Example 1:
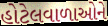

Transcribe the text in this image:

હોટેલવાળાઓને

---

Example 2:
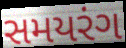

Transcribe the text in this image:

સમયરંગ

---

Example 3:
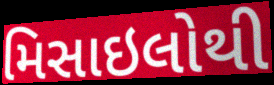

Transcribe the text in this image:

મિસાઇલોથી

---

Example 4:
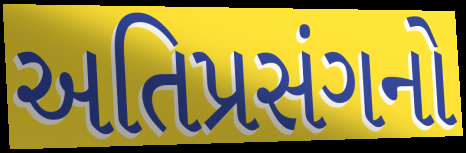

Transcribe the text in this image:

અતિપ્રસંગનો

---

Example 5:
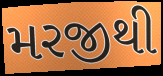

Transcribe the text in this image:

મરજીથી